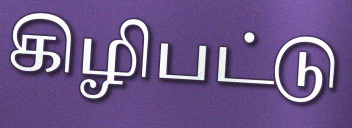
கிழிபட்டு